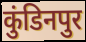
कुंडिनपुर